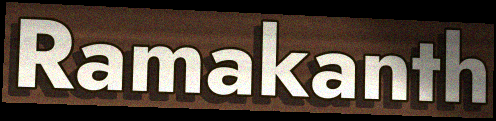
Ramakanth